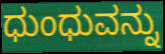
ಧುಂಧುವನ್ನು